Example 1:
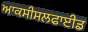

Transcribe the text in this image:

ਆਕਸੀਸਲਫਾਈਡ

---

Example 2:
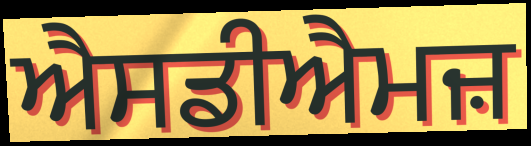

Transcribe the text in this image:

ਐਸਡੀਐਮਜ਼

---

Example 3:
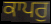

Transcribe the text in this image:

ਕਾਪਰੁ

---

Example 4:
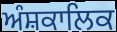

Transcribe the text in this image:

ਅੰਸ਼ਕਾਲਿਕ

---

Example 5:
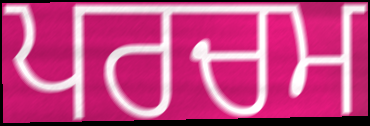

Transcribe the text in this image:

ਪਰਚਮ